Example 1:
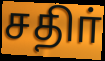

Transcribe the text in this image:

சதிர்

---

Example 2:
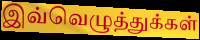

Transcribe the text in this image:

இவ்வெழுத்துக்கள்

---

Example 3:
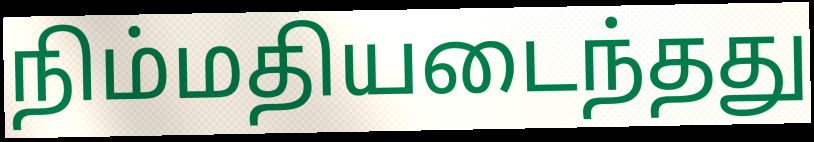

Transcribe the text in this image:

நிம்மதியடைந்தது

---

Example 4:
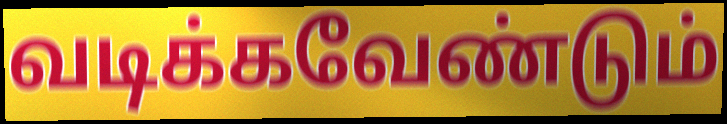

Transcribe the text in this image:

வடிக்கவேண்டும்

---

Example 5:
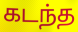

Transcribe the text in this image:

கடந்த